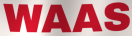
WAAS